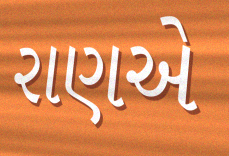
રાણએ